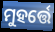
ମୁହର୍ତ୍ତେ